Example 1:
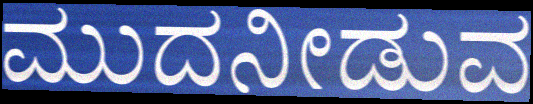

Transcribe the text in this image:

ಮುದನೀಡುವ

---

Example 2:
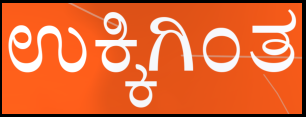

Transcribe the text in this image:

ಉಕ್ಕಿಗಿಂತ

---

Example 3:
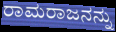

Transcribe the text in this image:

ರಾಮರಾಜನನ್ನು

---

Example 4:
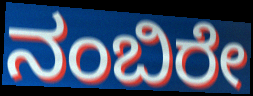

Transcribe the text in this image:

ನಂಬಿರೇ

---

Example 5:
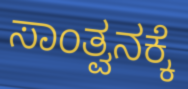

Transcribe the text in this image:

ಸಾಂತ್ವನಕ್ಕೆ